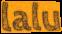
lalu